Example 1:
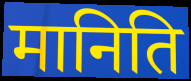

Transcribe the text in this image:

मानिति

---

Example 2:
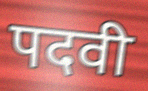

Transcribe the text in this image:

पदवी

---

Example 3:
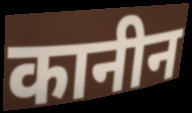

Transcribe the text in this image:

कानीन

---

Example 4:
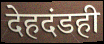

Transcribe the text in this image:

देहदंडही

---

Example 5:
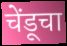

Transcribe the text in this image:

चेंडूचा